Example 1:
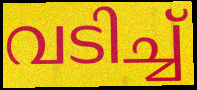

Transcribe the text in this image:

വടിച്ച്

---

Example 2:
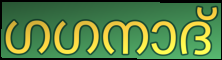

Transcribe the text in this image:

ഗഗനാദ്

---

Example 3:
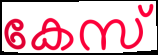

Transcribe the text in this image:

കേസ്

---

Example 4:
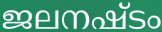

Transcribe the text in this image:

ജലനഷ്ടം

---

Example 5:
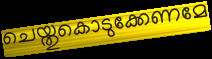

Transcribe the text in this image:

ചെയ്തുകൊടുക്കേണമേ